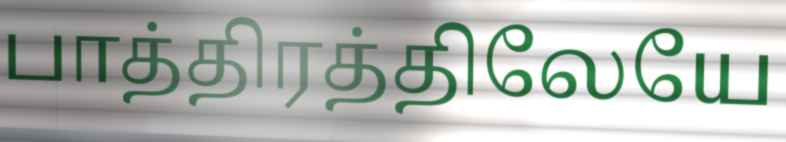
பாத்திரத்திலேயே